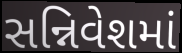
સન્નિવેશમાં